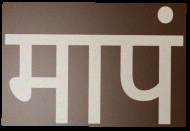
मापं